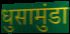
धुसामुंडा